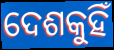
ଦେଶକୁହିଁ